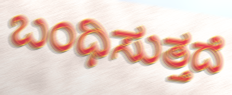
ಬಂಧಿಸುತ್ತದೆ